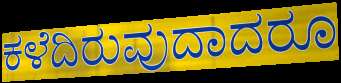
ಕಳೆದಿರುವುದಾದರೂ